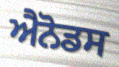
ਐਨੋਡਸ